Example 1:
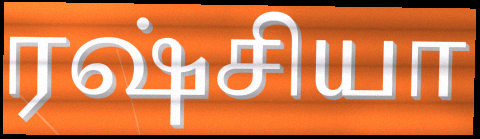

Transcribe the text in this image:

ரஷ்சியா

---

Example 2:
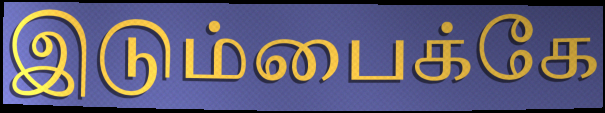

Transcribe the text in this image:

இடும்பைக்கே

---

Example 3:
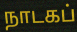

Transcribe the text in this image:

நாடகப்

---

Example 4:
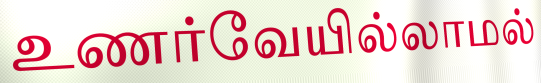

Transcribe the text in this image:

உணர்வேயில்லாமல்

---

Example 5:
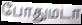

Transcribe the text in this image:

போதுமடா